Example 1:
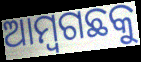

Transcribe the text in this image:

ଆମ୍ବଗଛକୁ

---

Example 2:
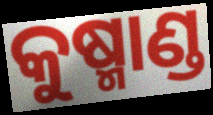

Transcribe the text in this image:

କୁଷ୍ମାଣ୍ଡ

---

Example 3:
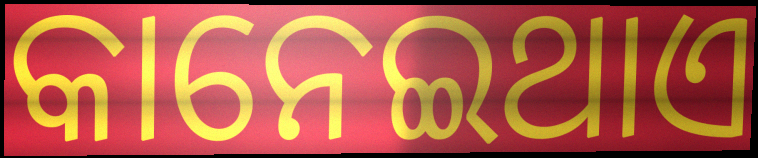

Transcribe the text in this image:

କାନେଇଥାଏ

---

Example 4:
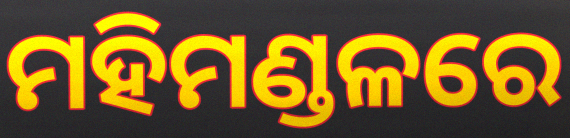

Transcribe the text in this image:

ମହିମଣ୍ଡଳରେ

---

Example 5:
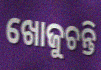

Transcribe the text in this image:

ଖୋଜୁଚନ୍ତି